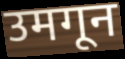
उमगून